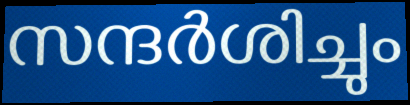
സന്ദർശിച്ചും